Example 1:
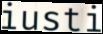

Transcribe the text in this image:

iusti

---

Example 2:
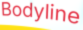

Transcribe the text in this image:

Bodyline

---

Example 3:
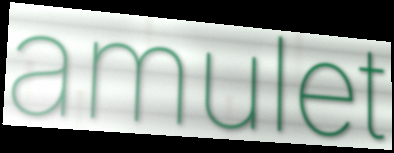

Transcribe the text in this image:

amulet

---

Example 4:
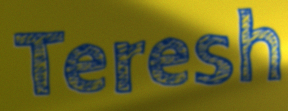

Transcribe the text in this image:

Teresh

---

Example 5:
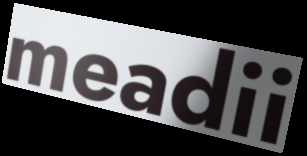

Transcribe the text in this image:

meadii